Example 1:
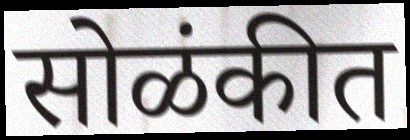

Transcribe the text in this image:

सोळंकीत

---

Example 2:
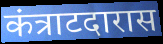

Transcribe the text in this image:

कंत्राटदारास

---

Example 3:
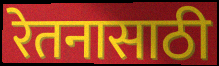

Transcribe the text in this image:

रेतनासाठी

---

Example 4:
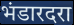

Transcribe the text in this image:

भंडारदरा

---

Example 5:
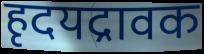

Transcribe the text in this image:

हृदयद्रावक